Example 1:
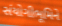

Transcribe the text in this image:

સંયોગીભૂમિને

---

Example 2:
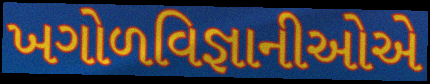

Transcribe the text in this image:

ખગોળવિજ્ઞાનીઓએ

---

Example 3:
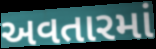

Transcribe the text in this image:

અવતારમાં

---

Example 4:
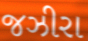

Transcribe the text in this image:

જઝીરા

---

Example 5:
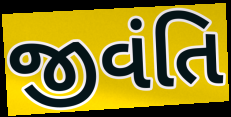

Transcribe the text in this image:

જીવંતિ